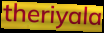
theriyala